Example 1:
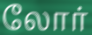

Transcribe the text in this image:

லோர்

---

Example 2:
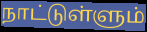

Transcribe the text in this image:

நாட்டுள்ளும்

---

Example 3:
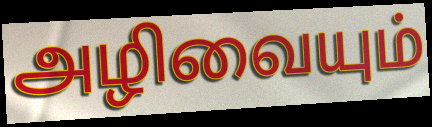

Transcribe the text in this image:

அழிவையும்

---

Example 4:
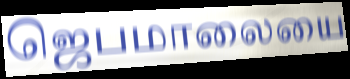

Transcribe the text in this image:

ஜெபமாலையை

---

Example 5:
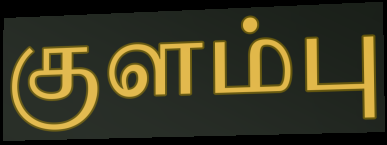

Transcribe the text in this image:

குளம்பு